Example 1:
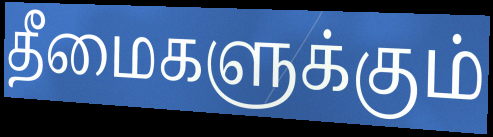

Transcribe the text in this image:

தீமைகளுக்கும்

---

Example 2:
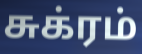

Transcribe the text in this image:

சுக்ரம்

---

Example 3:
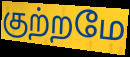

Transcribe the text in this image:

குற்றமே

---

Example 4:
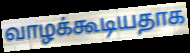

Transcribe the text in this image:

வாழக்கூடியதாக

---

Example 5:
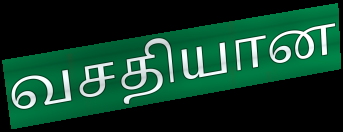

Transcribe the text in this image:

வசதியான